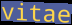
vitae